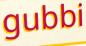
gubbi